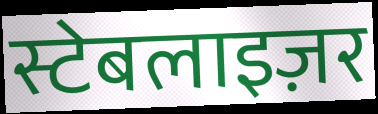
स्टेबलाइज़र